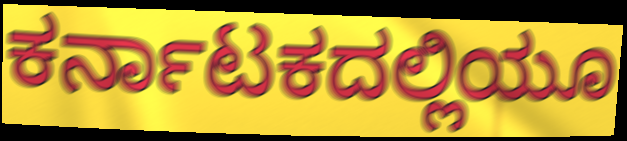
ಕರ್ನಾಟಕದಲ್ಲಿಯೂ